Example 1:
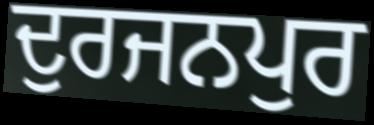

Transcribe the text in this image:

ਦੁਰਜਨਪੁਰ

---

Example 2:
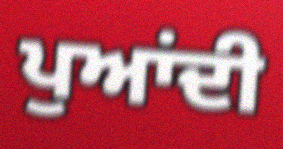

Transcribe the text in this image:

ਪੁਆਂਦੀ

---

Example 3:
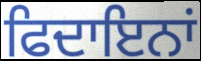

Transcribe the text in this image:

ਫਿਦਾਇਨਾਂ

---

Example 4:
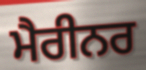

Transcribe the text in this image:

ਮੈਰੀਨਰ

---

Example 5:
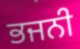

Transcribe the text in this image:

ਭਜਨੀ